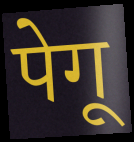
पेगू